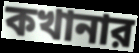
কখানার